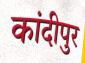
कांदीपुर